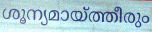
ശൂന്യമായ്ത്തീരും